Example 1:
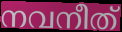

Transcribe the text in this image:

നവനീത്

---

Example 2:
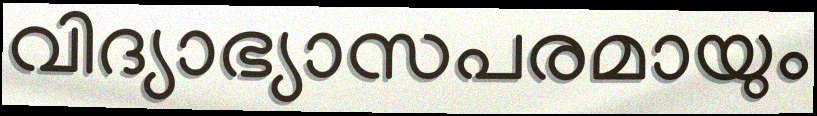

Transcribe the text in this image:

വിദ്യാഭ്യാസപരമായും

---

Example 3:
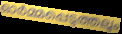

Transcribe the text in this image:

ഓർമ്മപ്പെടുത്തലും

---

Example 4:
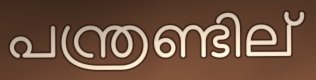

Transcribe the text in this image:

പന്ത്രണ്ടില്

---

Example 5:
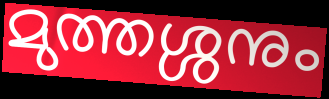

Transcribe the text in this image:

മുത്തശ്ശനും